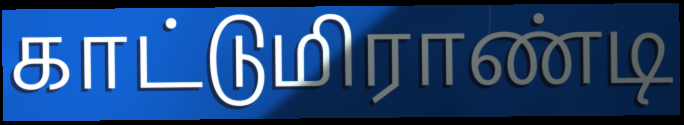
காட்டுமிராண்டி